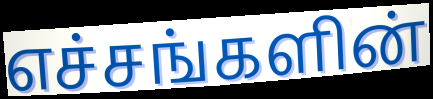
எச்சங்களின்